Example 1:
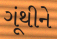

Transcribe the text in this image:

ગૂંથીને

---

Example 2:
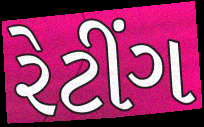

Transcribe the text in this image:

રેટીંગ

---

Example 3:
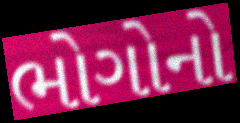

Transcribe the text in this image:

ભોગોનો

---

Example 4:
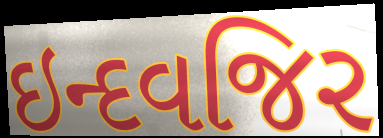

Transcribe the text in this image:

ઇન્દવજિર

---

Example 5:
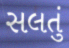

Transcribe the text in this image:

સલતું